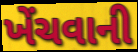
ખેંચવાની